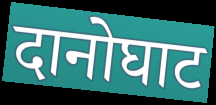
दानोघाट